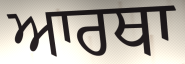
ਆਰਥਾ